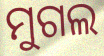
ମୁଗଲ